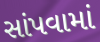
સાંપવામાં